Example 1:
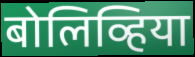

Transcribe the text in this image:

बोलिव्हिया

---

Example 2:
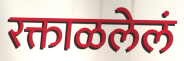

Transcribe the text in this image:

रक्ताळलेलं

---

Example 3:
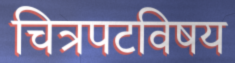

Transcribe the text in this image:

चित्रपटविषय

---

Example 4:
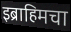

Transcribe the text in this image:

इब्राहिमचा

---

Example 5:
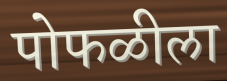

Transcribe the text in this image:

पोफळीला